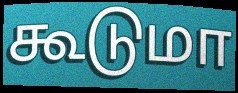
கூடுமா